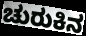
ಚುರುಕಿನ